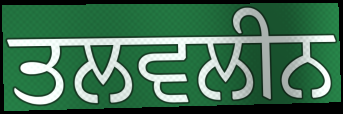
ਤਲਵਲੀਨ